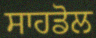
ਸਾਹਡੋਲ